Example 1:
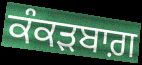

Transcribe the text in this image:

ਕੰਕੜਬਾਗ਼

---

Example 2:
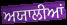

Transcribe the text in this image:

ਅਯਾਲੀਆਂ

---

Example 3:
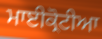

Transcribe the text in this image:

ਮਾਈਕ੍ਰੋਟੀਆ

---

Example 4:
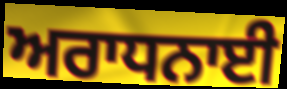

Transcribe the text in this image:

ਅਰਾਧਨਾਈ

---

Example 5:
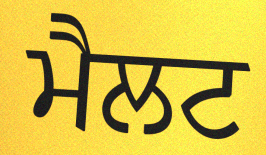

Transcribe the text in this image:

ਮੈਲਟ